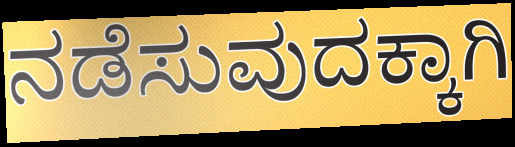
ನಡೆಸುವುದಕ್ಕಾಗಿ